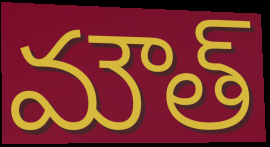
మౌత్